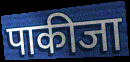
पाकीजा